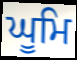
ਘੂਮਿ